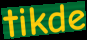
tikde